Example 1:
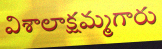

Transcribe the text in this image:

విశాలాక్షమ్మగారు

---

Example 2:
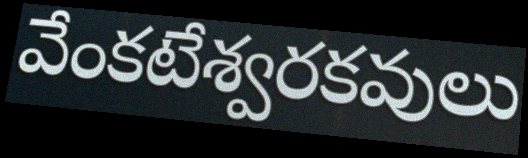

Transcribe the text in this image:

వేంకటేశ్వరకవులు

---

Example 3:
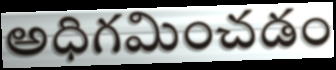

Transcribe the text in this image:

అధిగమించడం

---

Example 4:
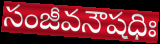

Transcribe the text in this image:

సంజీవనౌషధిః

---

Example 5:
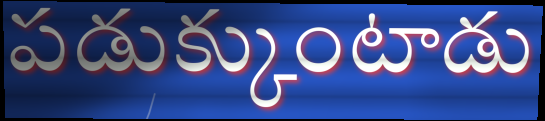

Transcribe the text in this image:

పడుక్కుంటాడు